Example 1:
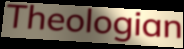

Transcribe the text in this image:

Theologian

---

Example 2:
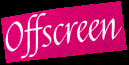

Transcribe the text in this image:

Offscreen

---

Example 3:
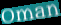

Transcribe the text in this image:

Oman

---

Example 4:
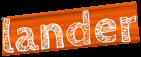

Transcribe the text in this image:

lander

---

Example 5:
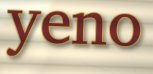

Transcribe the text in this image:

yeno